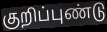
குறிப்புண்டு